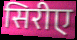
सिरीए